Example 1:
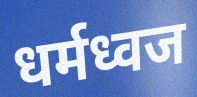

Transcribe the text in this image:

धर्मध्वज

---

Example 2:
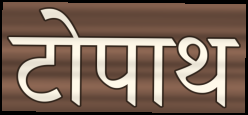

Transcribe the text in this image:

टोपाथ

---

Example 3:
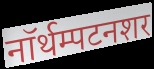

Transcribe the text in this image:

नॉर्थम्पटनशर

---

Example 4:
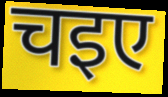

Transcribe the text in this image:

चइए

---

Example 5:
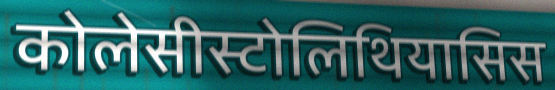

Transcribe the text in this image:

कोलेसीस्टोलिथियासिस